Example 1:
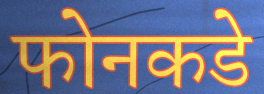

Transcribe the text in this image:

फोनकडे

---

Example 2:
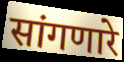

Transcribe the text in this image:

सांगणारे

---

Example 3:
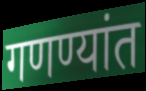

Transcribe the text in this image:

गणण्यांत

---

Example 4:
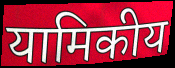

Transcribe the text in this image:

यामिकीय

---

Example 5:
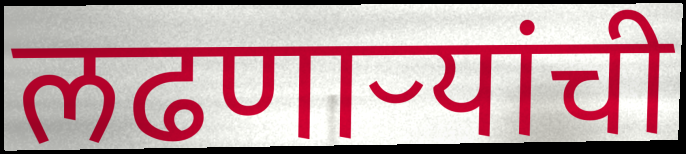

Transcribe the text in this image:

लढणाऱ्यांची